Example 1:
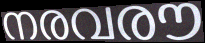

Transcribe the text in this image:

നരവരൗ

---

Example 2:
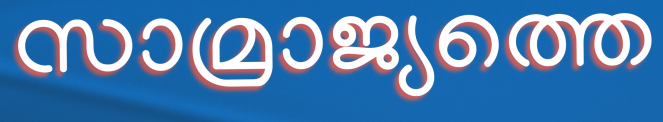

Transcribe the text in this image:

സാമ്രാജ്യത്തെ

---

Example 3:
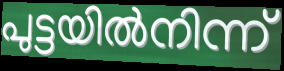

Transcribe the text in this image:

പുട്ടയിൽനിന്ന്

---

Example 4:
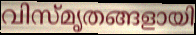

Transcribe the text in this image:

വിസ്മൃതങ്ങളായി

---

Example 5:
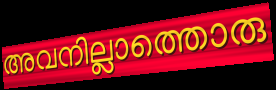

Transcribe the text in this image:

അവനില്ലാത്തൊരു